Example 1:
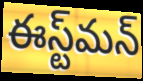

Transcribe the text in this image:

ఈస్ట్‌మన్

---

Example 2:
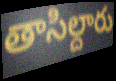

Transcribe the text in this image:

తాసిల్దారు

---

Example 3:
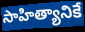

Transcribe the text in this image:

సాహిత్యానికే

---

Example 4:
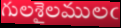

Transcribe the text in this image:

గులశైలములఁ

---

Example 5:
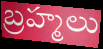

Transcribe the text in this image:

బ్రహ్మలు